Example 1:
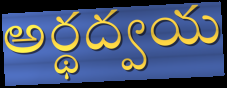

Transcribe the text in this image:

అర్థద్వయ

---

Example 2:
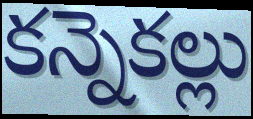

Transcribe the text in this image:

కన్నెకల్లు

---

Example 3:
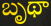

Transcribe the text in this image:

బృథా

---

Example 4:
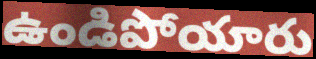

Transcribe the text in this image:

ఉండిపోయారు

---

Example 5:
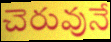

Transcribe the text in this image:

చెరువునే